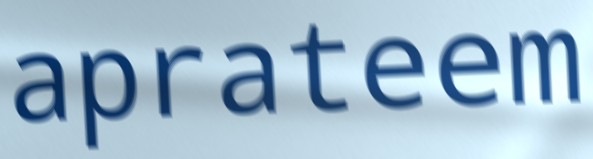
aprateem